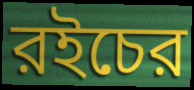
রইচের